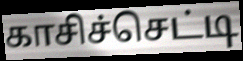
காசிச்செட்டி